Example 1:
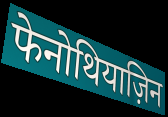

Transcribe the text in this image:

फेनोथियाज़िन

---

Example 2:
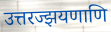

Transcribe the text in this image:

उत्तरज्झयणाणि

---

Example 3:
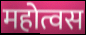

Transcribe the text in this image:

महोत्वस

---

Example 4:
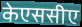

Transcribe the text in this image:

केएससीए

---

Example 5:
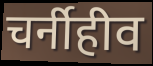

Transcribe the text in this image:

चर्नीहीव